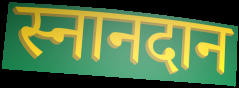
स्नानदान